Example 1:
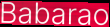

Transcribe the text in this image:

Babarao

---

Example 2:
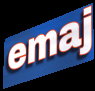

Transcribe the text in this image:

emaj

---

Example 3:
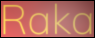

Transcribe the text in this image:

Raka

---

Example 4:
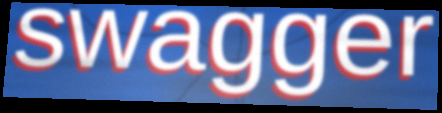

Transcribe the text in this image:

swagger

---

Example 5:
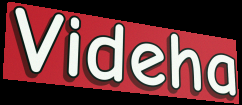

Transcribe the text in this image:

Videha